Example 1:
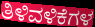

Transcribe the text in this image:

ತಿಳಿವಳಿಕೆಗಳ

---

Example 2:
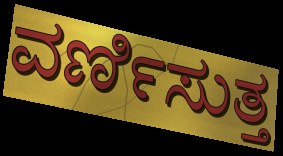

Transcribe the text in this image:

ವರ್ಣಿಸುತ್ತ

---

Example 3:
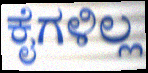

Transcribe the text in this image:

ಕೈಗಳಿಲ್ಲ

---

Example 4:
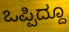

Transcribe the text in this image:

ಒಪ್ಪಿದ್ದೂ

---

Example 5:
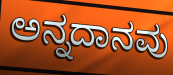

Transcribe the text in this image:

ಅನ್ನದಾನವು